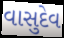
વાસુદેવ